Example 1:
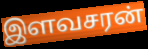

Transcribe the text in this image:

இளவசரன்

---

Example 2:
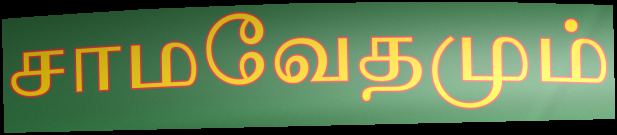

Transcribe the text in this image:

சாமவேதமும்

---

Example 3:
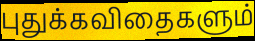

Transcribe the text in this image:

புதுக்கவிதைகளும்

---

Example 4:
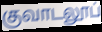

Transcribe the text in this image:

குவாடலூப்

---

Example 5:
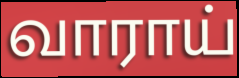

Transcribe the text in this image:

வாராய்